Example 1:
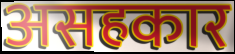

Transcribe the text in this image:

असहकार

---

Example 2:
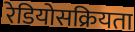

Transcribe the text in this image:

रेडियोसक्रियता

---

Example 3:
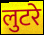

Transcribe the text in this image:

लुटरे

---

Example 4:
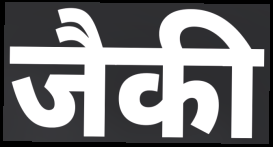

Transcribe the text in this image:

जैकी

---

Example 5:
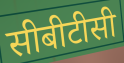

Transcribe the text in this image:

सीबीटीसी